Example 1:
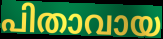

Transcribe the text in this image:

പിതാവായ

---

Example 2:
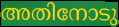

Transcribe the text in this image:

അതിനോടു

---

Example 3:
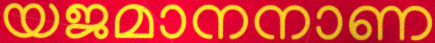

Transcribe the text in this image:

യജമാനനാണ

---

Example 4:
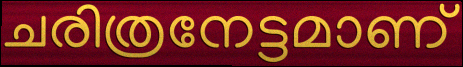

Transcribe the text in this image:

ചരിത്രനേട്ടമാണ്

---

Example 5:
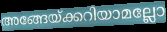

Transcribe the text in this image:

അങ്ങേയ്ക്കറിയാമല്ലോ